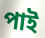
পাই